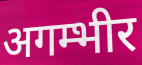
अगम्भीर